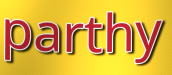
parthy